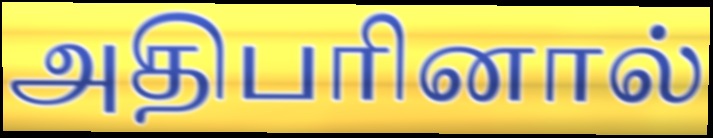
அதிபரினால்